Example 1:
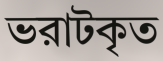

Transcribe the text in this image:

ভরাটকৃত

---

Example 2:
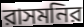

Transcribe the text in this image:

রাসমনির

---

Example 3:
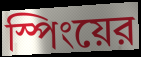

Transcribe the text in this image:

স্পিংয়ের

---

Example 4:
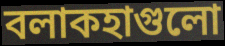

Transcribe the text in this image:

বলাকহাগুলো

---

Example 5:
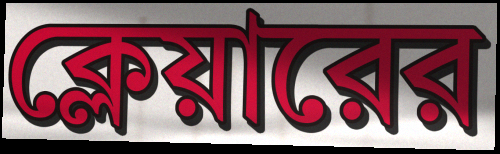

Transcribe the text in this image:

ক্লেয়ারের